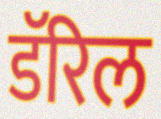
डॅरिल